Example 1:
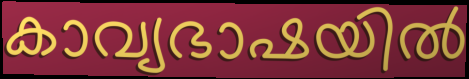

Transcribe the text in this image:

കാവ്യഭാഷയിൽ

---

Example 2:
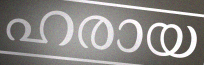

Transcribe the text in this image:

ഹരായ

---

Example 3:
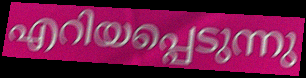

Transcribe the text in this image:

എറിയപ്പെടുന്നു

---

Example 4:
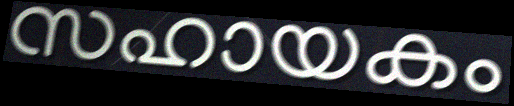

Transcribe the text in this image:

സഹായകം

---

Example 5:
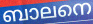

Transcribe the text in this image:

ബാലനെ